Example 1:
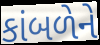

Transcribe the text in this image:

કાંબળેને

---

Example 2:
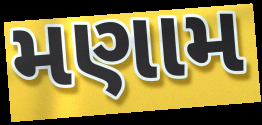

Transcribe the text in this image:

મણામ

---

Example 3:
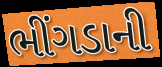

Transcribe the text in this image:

ભીંગડાની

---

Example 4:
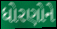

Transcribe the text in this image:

ધોરણોને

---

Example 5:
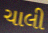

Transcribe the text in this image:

ચાલી